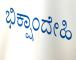
ಭಿಕ್ಷಾಂದೇಹಿ